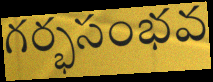
గర్భసంభవ